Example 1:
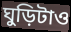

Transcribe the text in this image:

ঘুড়িটাও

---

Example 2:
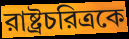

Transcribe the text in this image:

রাষ্ট্রচরিত্রকে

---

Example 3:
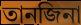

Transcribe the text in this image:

তানজিনা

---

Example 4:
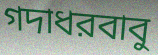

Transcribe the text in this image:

গদাধরবাবু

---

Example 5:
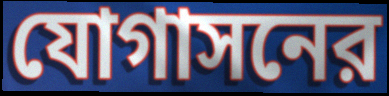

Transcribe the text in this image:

যোগাসনের